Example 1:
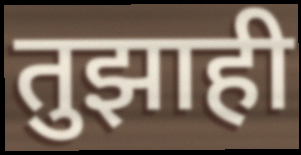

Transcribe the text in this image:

तुझाही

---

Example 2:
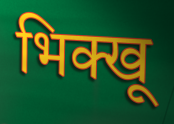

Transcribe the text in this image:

भिक्खू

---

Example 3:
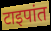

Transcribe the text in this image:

टाइपांत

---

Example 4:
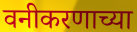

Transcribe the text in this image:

वनीकरणाच्या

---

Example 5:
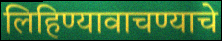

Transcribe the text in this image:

लिहिण्यावाचण्याचे